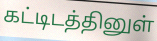
கட்டிடத்தினுள்